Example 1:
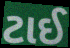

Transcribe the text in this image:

ટાઈ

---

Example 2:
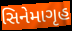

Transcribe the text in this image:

સિનેમાગૃહ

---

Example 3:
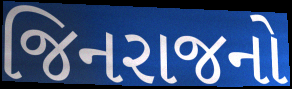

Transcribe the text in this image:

જિનરાજનો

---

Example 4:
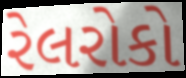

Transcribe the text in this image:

રેલરોકો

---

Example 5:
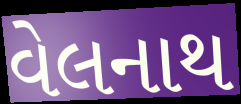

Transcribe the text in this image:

વેલનાથ